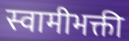
स्वामीभक्ती